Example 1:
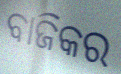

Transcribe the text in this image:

ବାଜିକର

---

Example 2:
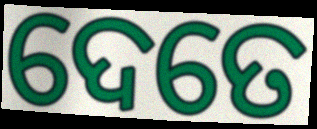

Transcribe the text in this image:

ଦେତେ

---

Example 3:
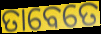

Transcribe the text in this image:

ତାବେତେ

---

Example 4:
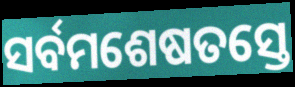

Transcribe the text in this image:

ସର୍ବମଶେଷତସ୍ତେ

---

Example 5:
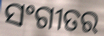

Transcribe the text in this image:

ସଂଗୀତର